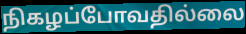
நிகழப்போவதில்லை